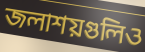
জলাশয়গুলিও